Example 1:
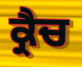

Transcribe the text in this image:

ਕ੍ਰੈਚ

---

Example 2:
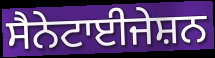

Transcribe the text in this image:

ਸੈਨੇਟਾਈਜੇਸ਼ਨ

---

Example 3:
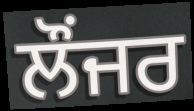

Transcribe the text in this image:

ਲੌਂਜਰ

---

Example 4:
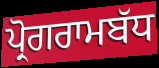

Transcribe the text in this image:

ਪ੍ਰੋਗਰਾਮਬੱਧ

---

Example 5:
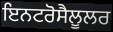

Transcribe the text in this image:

ਇਨਟਰੋਸੈਲੂਲਰ